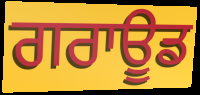
ਗਰਾਊਡ